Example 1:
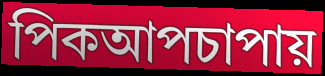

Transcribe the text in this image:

পিকআপচাপায়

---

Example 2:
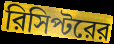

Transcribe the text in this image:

রিসিপ্টরের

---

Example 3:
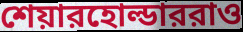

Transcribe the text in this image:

শেয়ারহোল্ডাররাও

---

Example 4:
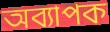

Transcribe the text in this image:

অব্যাপক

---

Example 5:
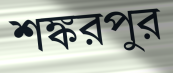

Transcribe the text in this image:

শঙ্করপুর